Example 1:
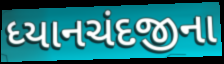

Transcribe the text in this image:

ધ્યાનચંદજીના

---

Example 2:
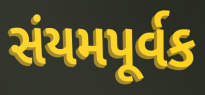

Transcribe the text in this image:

સંયમપૂર્વક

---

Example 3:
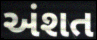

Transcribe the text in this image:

અંશત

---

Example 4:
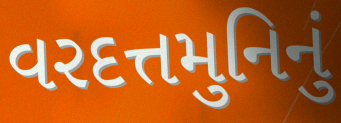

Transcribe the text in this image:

વરદત્તમુનિનું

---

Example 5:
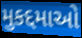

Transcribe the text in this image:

મુકદ્દમાઓ